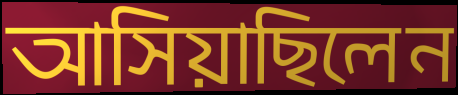
আসিয়াছিলেন